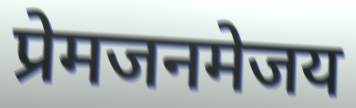
प्रेमजनमेजय